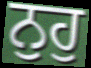
ਨੁਹੁ